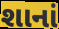
શાનાં